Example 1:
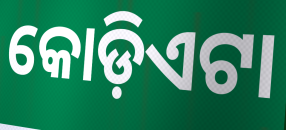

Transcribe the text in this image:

କୋଡ଼ିଏଟା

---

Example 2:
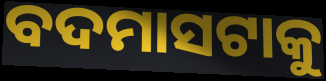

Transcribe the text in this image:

ବଦମାସଟାକୁ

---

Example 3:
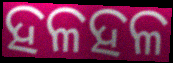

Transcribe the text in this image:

ହଳହଳ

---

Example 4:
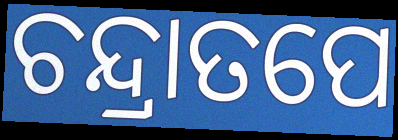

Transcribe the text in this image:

ଚନ୍ଦ୍ରାତପେ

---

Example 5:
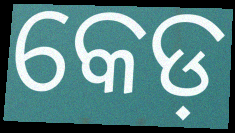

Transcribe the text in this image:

କେଡ଼